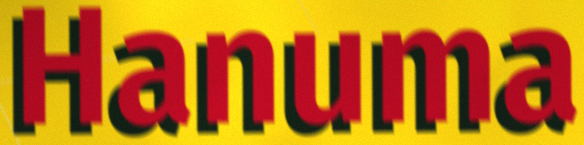
Hanuma